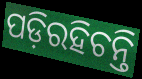
ପଡ଼ିରହିଚନ୍ତି